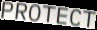
PROTECT